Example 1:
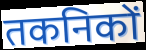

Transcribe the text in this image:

तकनिकों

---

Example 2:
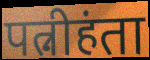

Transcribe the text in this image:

पत्नीहंता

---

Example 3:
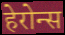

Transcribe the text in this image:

हेरोन्स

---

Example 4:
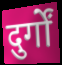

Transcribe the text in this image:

दुर्गों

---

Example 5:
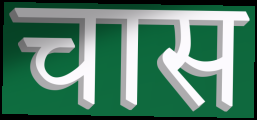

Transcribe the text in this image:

चास